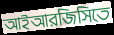
আইআরজিসিতে